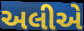
અલીએ